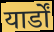
यार्डों